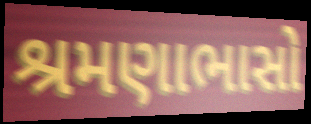
શ્રમણાભાસો